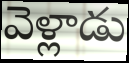
వెళ్లాడు